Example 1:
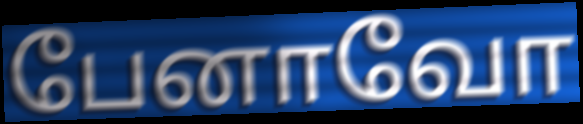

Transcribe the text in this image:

பேனாவோ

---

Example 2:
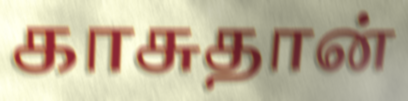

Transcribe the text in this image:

காசுதான்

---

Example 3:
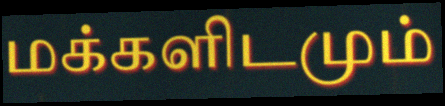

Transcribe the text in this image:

மக்களிடமும்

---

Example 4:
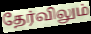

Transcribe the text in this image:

தேர்விலும்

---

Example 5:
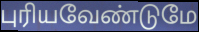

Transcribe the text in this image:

புரியவேண்டுமே